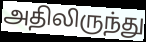
அதிலிருந்து